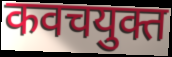
कवचयुक्त